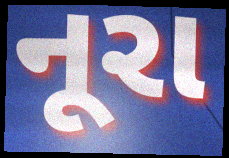
નૂરા